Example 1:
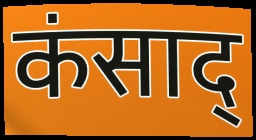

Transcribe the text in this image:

कंसाद्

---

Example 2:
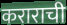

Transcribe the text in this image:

कराराची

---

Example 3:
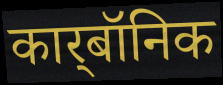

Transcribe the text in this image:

कार्‌बॉनिक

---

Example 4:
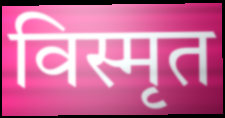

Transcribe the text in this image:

विस्मृत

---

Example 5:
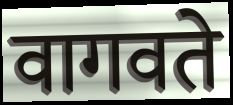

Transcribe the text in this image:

वागवते